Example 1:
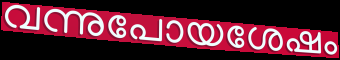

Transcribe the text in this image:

വന്നുപോയശേഷം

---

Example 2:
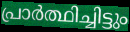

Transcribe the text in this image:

പ്രാർത്ഥിച്ചിട്ടും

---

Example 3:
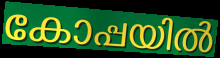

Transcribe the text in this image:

കോപ്പയിൽ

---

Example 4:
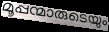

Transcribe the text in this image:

മൂപ്പന്മാരുടെയും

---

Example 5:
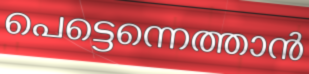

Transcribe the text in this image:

പെട്ടെന്നെത്താൻ